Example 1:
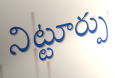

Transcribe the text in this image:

నిట్టూర్పు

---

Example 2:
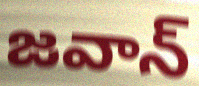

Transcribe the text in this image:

జవాన్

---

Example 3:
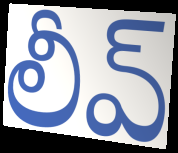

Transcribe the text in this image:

లీవ్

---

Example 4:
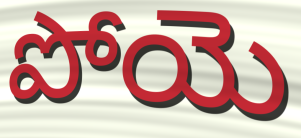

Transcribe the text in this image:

పోయె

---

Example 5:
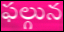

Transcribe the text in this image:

ఫల్గున